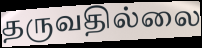
தருவதில்லை